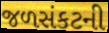
જળસંકટની